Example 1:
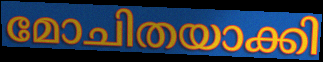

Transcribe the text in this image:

മോചിതയാക്കി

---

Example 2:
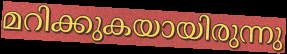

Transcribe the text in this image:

മറിക്കുകയായിരുന്നു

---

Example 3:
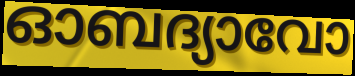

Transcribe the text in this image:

ഓബദ്യാവോ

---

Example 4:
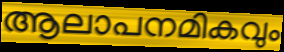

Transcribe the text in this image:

ആലാപനമികവും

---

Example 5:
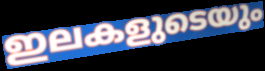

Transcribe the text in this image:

ഇലകളുടെയും